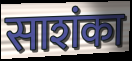
साशंका